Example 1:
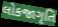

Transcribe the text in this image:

લોકજાગૃતિ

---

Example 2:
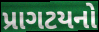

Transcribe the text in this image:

પ્રાગટયનો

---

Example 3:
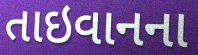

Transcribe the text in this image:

તાઇવાનના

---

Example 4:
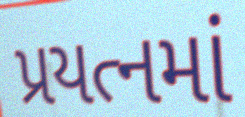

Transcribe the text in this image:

પ્રયત્નમાં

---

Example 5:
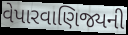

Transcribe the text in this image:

વેપારવાણિજ્યની